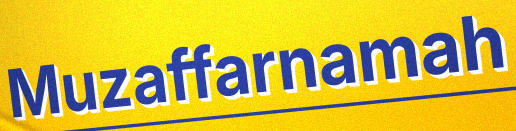
Muzaffarnamah